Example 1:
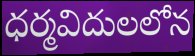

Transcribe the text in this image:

ధర్మవిదులలోన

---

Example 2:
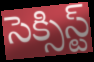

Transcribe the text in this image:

సెక్సిస్ట్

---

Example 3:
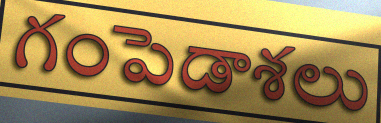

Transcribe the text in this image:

గంపెడాశలు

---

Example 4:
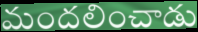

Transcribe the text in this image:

మందలించాడు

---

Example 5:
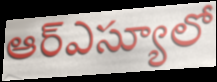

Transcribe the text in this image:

ఆర్ఎస్యూలో